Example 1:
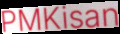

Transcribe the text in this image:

PMKisan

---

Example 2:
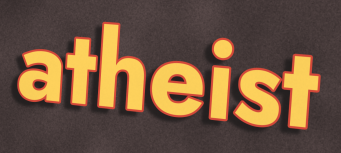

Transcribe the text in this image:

atheist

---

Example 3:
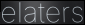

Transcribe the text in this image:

elaters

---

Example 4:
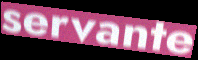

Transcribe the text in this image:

servante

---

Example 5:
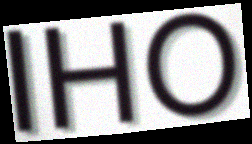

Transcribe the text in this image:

IHO